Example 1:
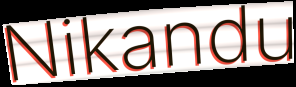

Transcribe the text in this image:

Nikandu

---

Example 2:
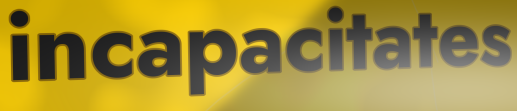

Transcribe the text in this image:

incapacitates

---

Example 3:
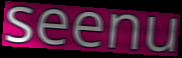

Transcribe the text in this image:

seenu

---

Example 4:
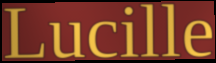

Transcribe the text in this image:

Lucille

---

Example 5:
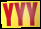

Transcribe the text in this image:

YYY